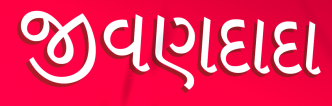
જીવણદાદા